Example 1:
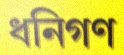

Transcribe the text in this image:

ধনিগণ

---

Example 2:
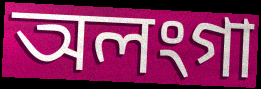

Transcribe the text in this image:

অলংগা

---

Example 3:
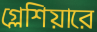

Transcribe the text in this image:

গ্লেশিয়ারে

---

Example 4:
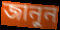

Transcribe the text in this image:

জানুন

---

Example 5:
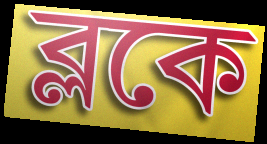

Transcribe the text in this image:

ব্লকে